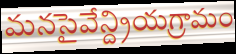
మనసైవేన్ద్రియగ్రామం